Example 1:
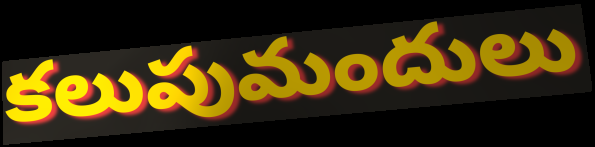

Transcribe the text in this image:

కలుపుమందులు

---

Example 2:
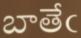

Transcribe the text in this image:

బాతేఁ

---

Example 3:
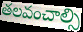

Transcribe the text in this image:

తలవంచాల్సి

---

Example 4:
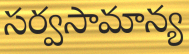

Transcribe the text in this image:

సర్వసామాన్య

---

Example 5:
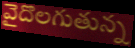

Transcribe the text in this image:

వైదొలగుతున్న